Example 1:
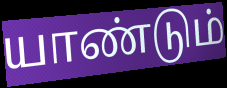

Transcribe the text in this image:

யாண்டும்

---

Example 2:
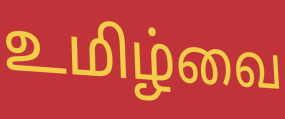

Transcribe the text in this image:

உமிழ்வை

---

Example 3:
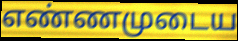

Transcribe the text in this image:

எண்ணமுடைய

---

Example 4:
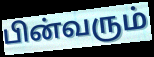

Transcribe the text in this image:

பின்வரும்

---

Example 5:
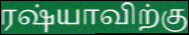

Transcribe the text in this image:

ரஷ்யாவிற்கு